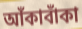
আঁকাবাঁকা